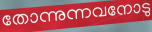
തോന്നുന്നവനോടു